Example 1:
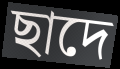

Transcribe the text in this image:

ছাদে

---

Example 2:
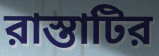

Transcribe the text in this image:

রাস্তাটির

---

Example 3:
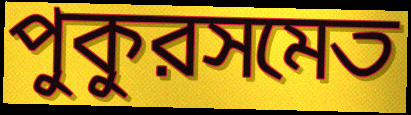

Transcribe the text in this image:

পুকুরসমেত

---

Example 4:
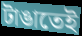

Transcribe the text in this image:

টাঙাতেই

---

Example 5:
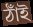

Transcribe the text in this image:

ঠাঁই